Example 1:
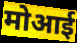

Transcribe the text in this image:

मोआई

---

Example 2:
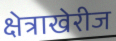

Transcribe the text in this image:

क्षेत्राखेरीज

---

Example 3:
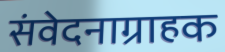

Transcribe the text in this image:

संवेदनाग्राहक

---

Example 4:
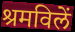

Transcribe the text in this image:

श्रमविलें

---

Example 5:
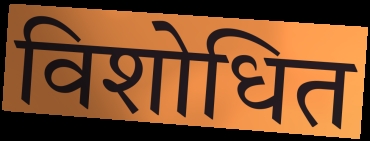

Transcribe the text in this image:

विशोधित